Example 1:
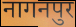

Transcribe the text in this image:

नागनपुर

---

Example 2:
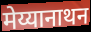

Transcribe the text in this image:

मेय्यानाथन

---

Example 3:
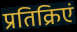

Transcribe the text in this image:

प्रतिक्रिएं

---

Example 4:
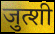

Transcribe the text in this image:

जुत्शी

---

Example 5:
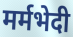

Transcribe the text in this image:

मर्मभेदी